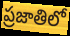
ప్రజాతిలో